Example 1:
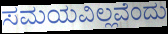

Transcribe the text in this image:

ಸಮಯವಿಲ್ಲವೆಂದು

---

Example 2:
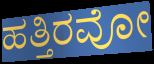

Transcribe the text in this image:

ಹತ್ತಿರವೋ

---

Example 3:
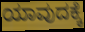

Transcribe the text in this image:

ಯಾವುದಕ್ಕೆ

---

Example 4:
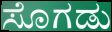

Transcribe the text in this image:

ಸೊಗಡು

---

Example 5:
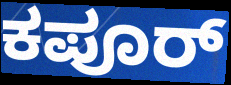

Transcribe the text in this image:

ಕಪೂರ್